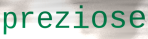
preziose